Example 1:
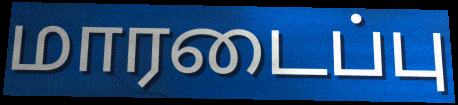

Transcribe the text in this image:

மாரடைப்பு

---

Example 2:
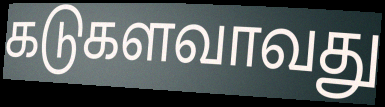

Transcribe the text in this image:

கடுகளவாவது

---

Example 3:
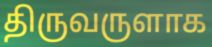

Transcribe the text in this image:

திருவருளாக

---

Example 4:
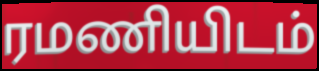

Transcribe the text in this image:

ரமணியிடம்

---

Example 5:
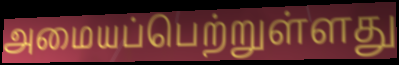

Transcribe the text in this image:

அமையப்பெற்றுள்ளது